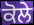
ਕੋਲੇ